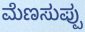
ಮೆಣಸುಪ್ಪು